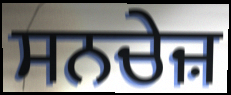
ਸਨਚੇਜ਼